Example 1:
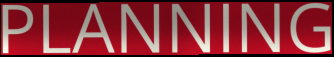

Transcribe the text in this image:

PLANNING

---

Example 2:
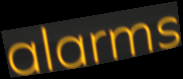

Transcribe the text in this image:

alarms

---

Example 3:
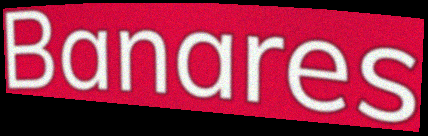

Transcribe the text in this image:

Banares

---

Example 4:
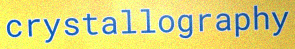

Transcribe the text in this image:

crystallography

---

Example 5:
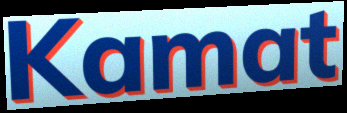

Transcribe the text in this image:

Kamat